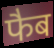
फैब